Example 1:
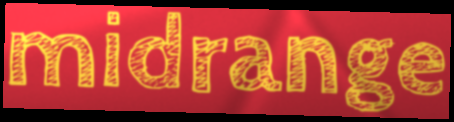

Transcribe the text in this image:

midrange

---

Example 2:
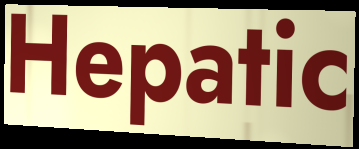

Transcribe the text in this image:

Hepatic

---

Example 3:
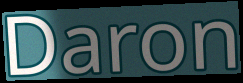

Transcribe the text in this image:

Daron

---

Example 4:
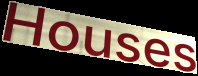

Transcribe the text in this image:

Houses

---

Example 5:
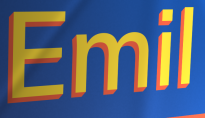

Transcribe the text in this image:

Emil